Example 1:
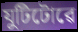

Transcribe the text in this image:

যুটিটোৱে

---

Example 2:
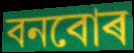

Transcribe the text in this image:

বনবোৰ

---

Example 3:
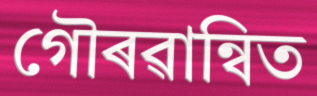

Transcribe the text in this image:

গৌৰৱান্বিত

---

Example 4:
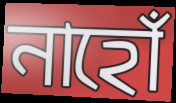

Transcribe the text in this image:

নাহোঁ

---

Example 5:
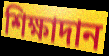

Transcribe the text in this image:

শিক্ষাদান